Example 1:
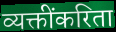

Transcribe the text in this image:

व्यक्तींकरिता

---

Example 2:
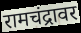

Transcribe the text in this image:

रामचंद्रावर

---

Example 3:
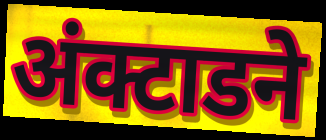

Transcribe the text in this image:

अंक्टाडने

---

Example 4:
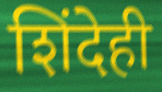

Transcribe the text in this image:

शिंदेही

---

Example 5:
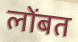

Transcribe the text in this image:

लोंबत